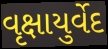
વૃક્ષાયુર્વેદ